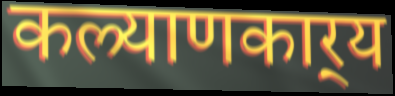
कल्याणकार्य